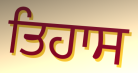
ਤਿਹਾਸ